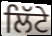
ਲਿੱਟੇ